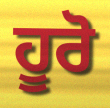
ਹੂਰੋ